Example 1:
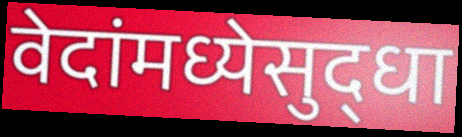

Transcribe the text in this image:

वेदांमध्येसुद्धा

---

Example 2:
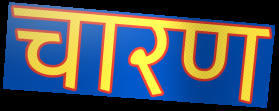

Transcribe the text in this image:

चारण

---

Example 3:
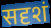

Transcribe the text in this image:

सदृशं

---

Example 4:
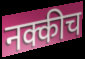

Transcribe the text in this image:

नक्‍कीच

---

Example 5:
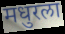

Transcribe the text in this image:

मधुरला